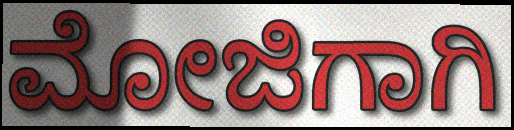
ಮೋಜಿಗಾಗಿ